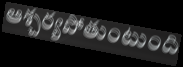
ఆశ్చర్యపోతుంటుంది